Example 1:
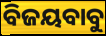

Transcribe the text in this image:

ବିଜୟବାବୁ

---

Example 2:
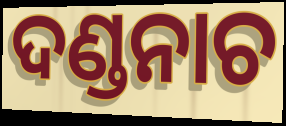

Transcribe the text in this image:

ଦଣ୍ଡନାଚ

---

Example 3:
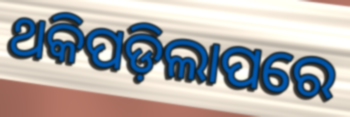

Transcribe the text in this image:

ଥକିପଡ଼ିଲାପରେ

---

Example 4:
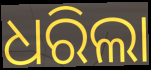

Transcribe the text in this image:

ଧରିଲା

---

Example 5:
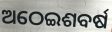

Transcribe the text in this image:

ଅଠେଇଶବର୍ଷ